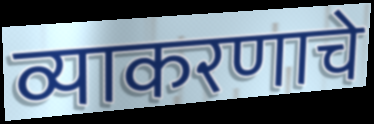
व्याकरणाचे